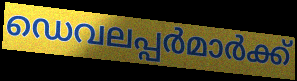
ഡെവലപ്പർമാർക്ക്